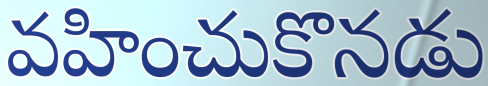
వహించుకొనడు